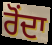
ਰੋਂਦਾ